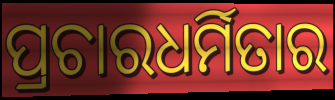
ପ୍ରଚାରଧର୍ମିତାର